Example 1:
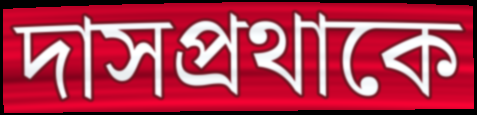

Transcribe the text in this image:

দাসপ্রথাকে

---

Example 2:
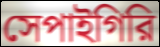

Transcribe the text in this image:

সেপাইগিরি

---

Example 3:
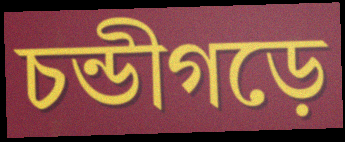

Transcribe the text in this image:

চন্ডীগড়ে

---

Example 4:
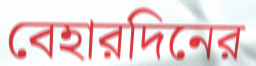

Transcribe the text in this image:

বেহারদিনের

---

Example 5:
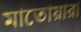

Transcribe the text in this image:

মাতোয়ারা